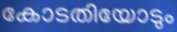
കോടതിയോടും